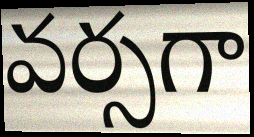
వర్సగా